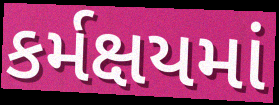
કર્મક્ષયમાં